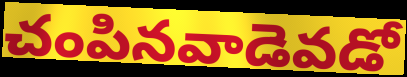
చంపినవాడెవడో